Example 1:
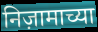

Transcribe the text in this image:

निज़ामाच्या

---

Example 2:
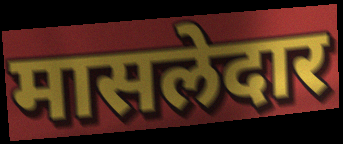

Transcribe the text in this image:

मासलेदार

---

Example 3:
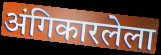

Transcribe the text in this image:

अंगिकारलेला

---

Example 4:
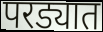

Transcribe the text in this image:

परड्यात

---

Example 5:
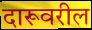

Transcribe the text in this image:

दारूवरील